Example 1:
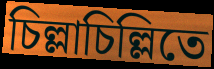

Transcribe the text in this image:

চিল্লাচিল্লিতে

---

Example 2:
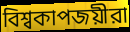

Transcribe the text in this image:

বিশ্বকাপজয়ীরা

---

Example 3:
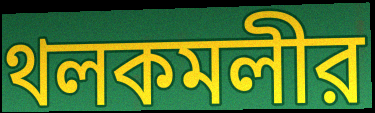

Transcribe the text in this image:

থলকমলীর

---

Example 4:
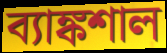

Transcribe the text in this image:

ব্যাঙ্কশাল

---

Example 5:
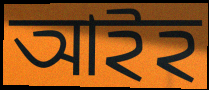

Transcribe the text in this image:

আইহ